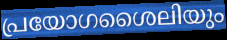
പ്രയോഗശൈലിയും